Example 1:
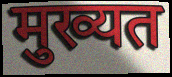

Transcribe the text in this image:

मुख्यत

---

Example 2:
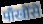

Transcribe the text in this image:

पाँखोंसे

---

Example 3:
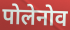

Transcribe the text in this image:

पोलेनोव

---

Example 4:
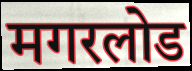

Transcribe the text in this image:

मगरलोड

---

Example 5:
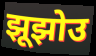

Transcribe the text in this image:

झूझोउ